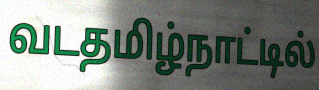
வடதமிழ்நாட்டில்